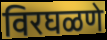
विरघळणे